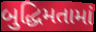
બુદ્ધિમતામાં